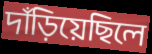
দাঁড়িয়েছিলে